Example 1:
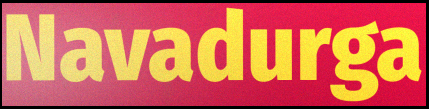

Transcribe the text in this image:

Navadurga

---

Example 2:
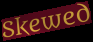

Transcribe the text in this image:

Skewed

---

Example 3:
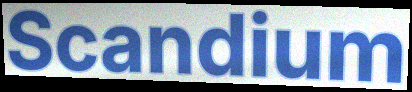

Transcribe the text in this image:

Scandium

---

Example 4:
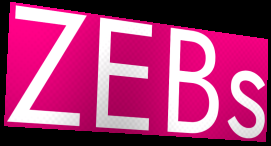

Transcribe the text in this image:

ZEBs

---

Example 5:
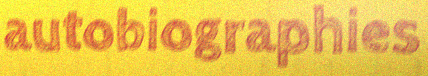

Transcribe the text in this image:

autobiographies